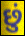
છું